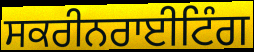
ਸਕਰੀਨਰਾਈਟਿੰਗ